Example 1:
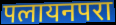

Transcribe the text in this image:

पलायनपरा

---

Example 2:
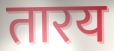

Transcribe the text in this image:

तारय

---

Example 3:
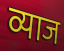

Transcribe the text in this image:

व्याज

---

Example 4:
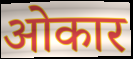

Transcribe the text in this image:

ओकार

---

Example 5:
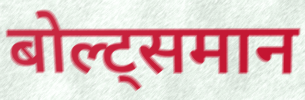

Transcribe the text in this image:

बोल्ट्समान